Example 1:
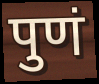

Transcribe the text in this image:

पुणं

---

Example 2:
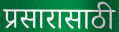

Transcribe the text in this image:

प्रसारासाठी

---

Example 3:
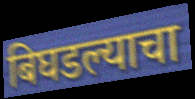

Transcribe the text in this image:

बिघडल्याचा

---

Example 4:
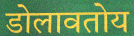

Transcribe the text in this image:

डोलावतोय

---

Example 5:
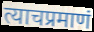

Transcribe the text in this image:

त्याचप्रमाणं